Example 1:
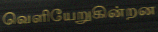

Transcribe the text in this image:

வெளியேறுகின்றன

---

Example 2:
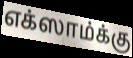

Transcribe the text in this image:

எக்ஸாம்க்கு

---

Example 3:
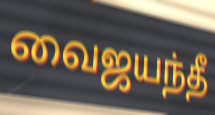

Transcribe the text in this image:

வைஜயந்தீ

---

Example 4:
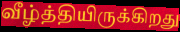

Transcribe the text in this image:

வீழ்த்தியிருக்கிறது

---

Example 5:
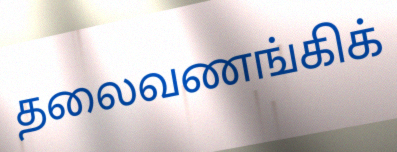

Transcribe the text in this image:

தலைவணங்கிக்